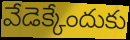
వేడెక్కేందుకు